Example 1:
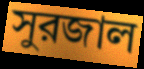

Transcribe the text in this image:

সুরজাল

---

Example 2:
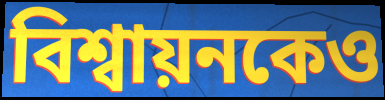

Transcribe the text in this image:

বিশ্বায়নকেও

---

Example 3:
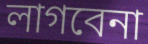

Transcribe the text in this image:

লাগবেনা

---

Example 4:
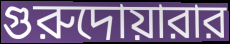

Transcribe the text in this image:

গুরুদোয়ারার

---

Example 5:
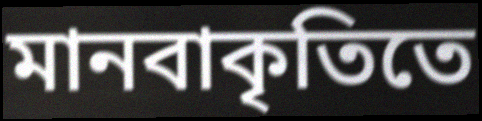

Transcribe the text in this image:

মানবাকৃতিতে